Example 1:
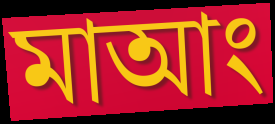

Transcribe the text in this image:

মাআং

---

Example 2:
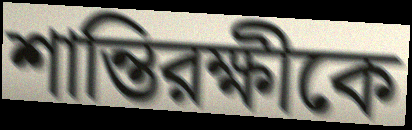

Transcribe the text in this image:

শান্তিরক্ষীকে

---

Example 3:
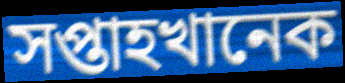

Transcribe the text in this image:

সপ্তাহখানেক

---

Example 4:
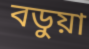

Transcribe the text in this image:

বডুয়া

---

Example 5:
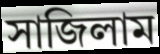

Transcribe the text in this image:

সাজিলাম